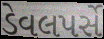
ડેવલપર્સે